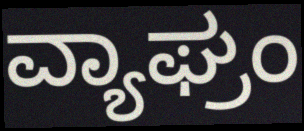
ವ್ಯಾಘ್ರಂ